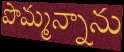
పొమ్మన్నాను